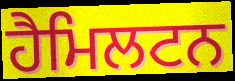
ਹੈਮਿਲਟਨ